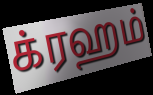
க்ரஹம்